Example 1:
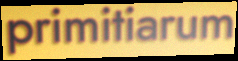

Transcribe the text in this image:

primitiarum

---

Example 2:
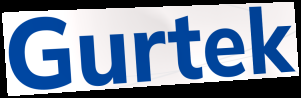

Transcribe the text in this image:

Gurtek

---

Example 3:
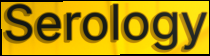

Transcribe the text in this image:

Serology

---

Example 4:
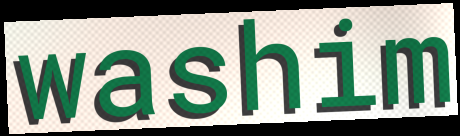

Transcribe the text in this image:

washim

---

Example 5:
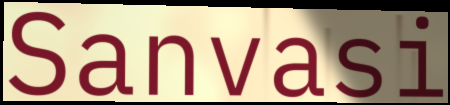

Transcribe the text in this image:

Sanvasi